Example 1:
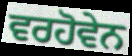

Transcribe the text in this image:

ਵਰਹੋਵੇਨ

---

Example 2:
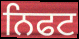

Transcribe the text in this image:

ਨਿਫਟ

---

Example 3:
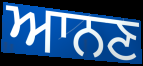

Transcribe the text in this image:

ਆਨਣ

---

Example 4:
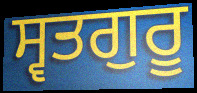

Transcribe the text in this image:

ਸ੍ਵਤਗੁਰੂ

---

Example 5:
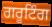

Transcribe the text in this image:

ਗਰੂਟਿੰਗ